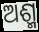
ଅଶ୍ମ